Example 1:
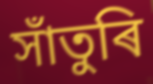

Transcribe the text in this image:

সাঁতুৰি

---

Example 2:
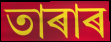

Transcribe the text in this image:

তাৰাৰ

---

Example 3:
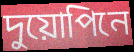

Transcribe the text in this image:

দুয়োপিনে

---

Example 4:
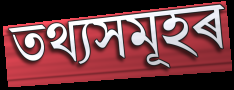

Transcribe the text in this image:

তথ্যসমূহৰ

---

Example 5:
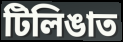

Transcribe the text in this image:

টিলিঙাত